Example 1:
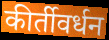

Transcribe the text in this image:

कीर्तीवर्धन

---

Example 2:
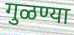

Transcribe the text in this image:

गुळण्या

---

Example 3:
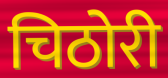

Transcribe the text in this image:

चिठोरी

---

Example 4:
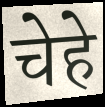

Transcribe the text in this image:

चेहे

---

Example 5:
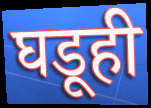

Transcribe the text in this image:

घडूही